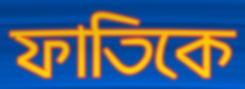
ফাতিকে